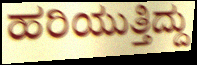
ಹರಿಯುತ್ತಿದ್ದು